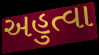
અહુત્વા